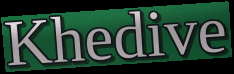
Khedive